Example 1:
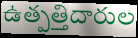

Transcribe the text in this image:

ఉత్పత్తిదారుల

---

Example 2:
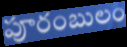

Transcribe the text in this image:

పూరంబులం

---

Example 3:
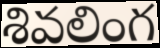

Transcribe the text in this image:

శివలింగ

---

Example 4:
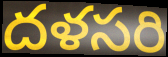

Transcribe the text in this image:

దళసరి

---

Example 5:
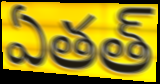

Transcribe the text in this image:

ఏతత్